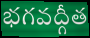
భగవద్గీత